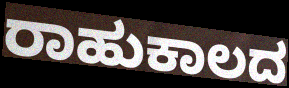
ರಾಹುಕಾಲದ